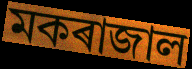
মকৰাজাল